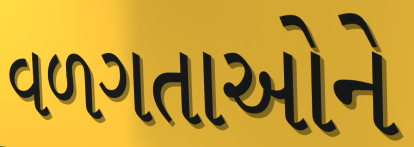
વળગતાઓને